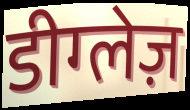
डीग्लेज़